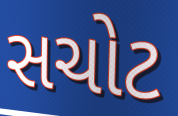
સચોટ